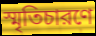
স্মৃতিচারণে